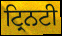
ਟ੍ਰਿਨਟੀ